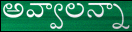
అవ్వాలన్నా